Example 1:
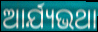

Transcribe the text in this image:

ଆର୍ଯ୍ୟଭଥା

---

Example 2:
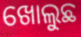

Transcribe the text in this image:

ଖୋଲୁଛ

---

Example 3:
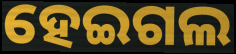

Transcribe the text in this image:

ହେଇଗଲ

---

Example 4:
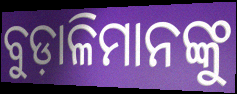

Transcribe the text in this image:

ବୁଡ଼ାଳିମାନଙ୍କୁ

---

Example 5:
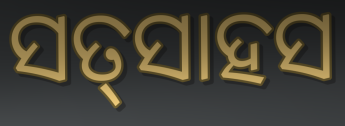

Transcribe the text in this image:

ସତ୍‌ସାହସ